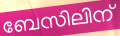
ബേസിലിന്